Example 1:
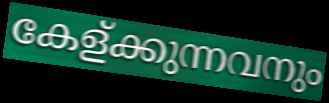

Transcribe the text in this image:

കേള്ക്കുന്നവനും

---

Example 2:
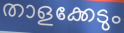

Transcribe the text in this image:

താളക്കേടും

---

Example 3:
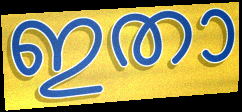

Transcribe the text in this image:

ഇതാ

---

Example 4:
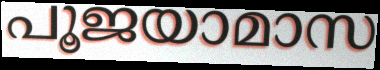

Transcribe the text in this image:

പൂജയാമാസ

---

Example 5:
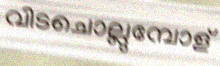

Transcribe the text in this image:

വിടചൊല്ലുമ്പോള്